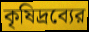
কৃষিদ্রব্যের